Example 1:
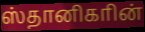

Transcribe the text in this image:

ஸ்தானிகரின்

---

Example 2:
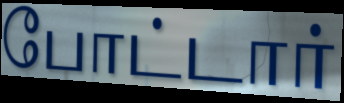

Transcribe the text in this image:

போட்டார்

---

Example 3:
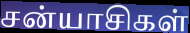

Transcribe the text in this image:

சன்யாசிகள்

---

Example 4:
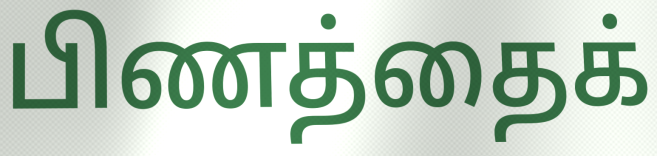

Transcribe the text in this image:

பிணத்தைக்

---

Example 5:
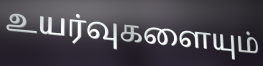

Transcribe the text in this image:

உயர்வுகளையும்